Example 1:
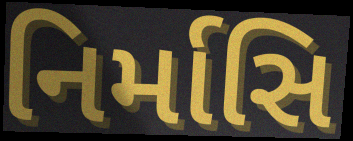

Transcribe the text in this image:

નિર્માસિ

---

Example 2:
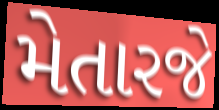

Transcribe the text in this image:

મેતારજે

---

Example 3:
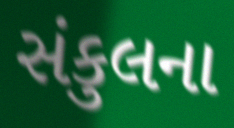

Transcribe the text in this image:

સંકુલના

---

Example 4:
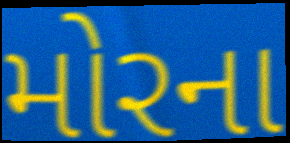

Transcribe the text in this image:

મોરના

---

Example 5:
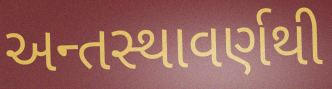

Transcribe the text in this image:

અન્તસ્થાવર્ણથી